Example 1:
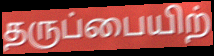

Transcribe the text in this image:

தருப்பையிற்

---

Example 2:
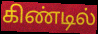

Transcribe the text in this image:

கிண்டில்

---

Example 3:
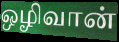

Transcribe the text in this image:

ஒழிவான்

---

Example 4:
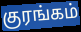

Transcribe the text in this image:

குரங்கம்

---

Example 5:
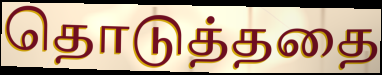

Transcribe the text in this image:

தொடுத்ததை